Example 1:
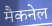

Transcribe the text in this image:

मैकनेल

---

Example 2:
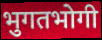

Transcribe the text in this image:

भुगतभोगी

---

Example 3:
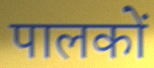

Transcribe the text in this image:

पालकों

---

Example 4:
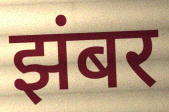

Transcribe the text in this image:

झंबर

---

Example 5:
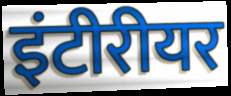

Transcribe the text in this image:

इंटीरीयर